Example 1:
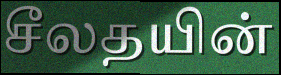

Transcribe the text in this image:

சீலதயின்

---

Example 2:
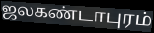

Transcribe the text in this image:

ஜலகண்டாபுரம்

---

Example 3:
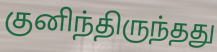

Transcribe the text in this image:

குனிந்திருந்தது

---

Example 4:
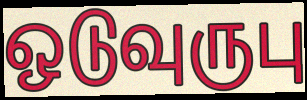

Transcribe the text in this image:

ஒடுவுருபு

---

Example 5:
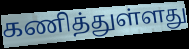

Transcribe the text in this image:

கணித்துள்ளது